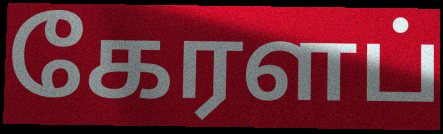
கேரளப்